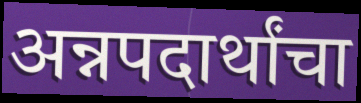
अन्नपदार्थांचा